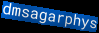
dmsagarphys